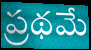
ప్రథమే